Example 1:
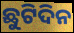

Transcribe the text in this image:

ଛୁଟିଦିନ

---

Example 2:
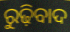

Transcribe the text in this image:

ରୁଢ଼ିବାଦ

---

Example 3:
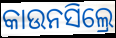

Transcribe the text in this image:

କାଉନସିଲ୍ରେ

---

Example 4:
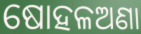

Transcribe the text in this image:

ଷୋହଳଅଣା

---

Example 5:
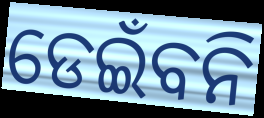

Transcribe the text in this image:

ଡେଇଁବନି